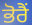
ਭੋਰੈਂ